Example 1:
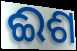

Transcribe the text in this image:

ଈଶ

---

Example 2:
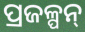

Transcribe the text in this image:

ପ୍ରଜଳ୍ପନ୍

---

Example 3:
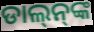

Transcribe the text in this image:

ଡାଲ୍‌ନ୍‌ଙ୍କ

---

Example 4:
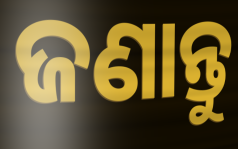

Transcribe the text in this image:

ଜଣାନ୍ତୁ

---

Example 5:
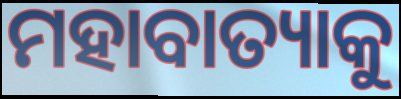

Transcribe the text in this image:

ମହାବାତ୍ୟାକୁ